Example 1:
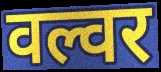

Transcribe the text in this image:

वल्वर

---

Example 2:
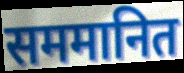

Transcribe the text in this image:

सममानित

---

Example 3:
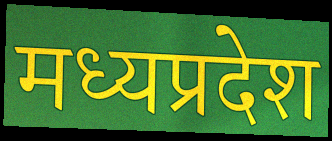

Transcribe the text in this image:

मध्यप्रदेश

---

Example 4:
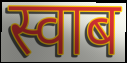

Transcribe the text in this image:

स्वाब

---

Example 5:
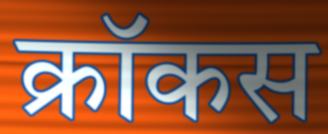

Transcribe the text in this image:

क्रॉकस